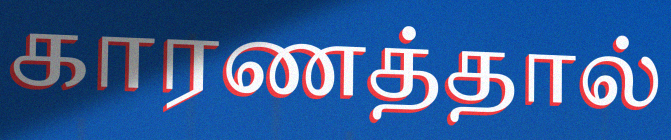
காரணத்தால்